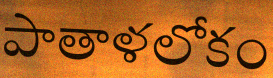
పాతాళలోకం